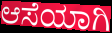
ಆಸೆಯಾಗಿ